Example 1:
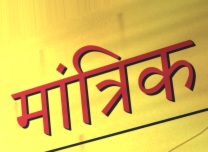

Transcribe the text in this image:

मांत्रिक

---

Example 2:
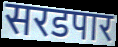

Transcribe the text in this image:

सरडपार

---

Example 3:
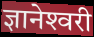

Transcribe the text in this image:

ज्ञानेश्‍वरी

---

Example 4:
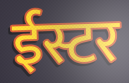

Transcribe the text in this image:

ईस्टर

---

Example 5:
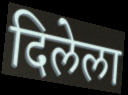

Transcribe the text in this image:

दिलेला